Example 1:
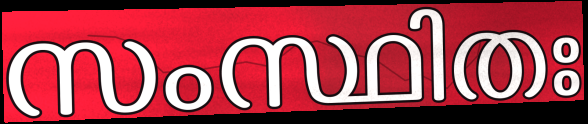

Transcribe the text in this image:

സംസ്ഥിതഃ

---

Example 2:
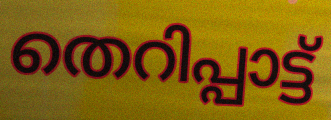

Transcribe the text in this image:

തെറിപ്പാട്ട്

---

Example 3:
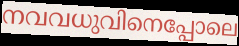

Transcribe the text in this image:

നവവധുവിനെപ്പോലെ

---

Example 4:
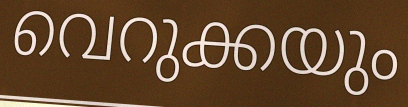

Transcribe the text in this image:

വെറുക്കയും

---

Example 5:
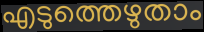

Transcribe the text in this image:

എടുത്തെഴുതാം